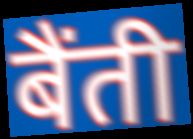
बैंती